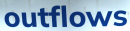
outflows